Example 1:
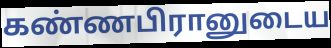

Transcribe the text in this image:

கண்ணபிரானுடைய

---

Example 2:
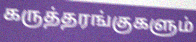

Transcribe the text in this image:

கருத்தரங்குகளும்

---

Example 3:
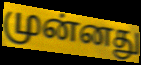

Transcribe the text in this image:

முன்னது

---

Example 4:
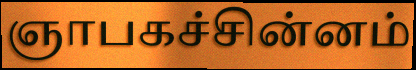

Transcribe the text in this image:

ஞாபகச்சின்னம்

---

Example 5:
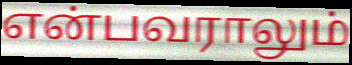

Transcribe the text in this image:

என்பவராலும்